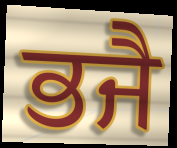
ਭਜੈ